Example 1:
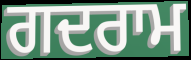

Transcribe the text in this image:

ਗਦਰਾਮ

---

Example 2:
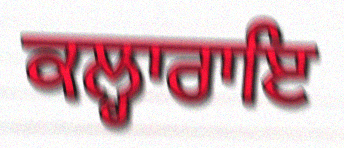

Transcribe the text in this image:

ਕਲ੍ਹਾਰਾਇ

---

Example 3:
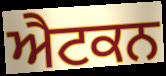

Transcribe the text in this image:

ਐਟਕਨ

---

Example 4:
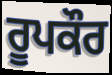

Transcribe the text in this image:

ਰੂਪਕੌਰ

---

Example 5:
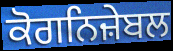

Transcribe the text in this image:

ਕੋਗਨਿਜ਼ੇਬਲ